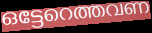
ഒട്ടേറെത്തവണ